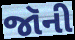
જૉની